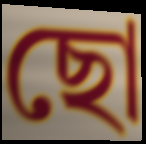
ছো